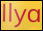
Ilya